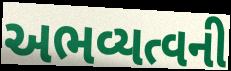
અભવ્યત્વની